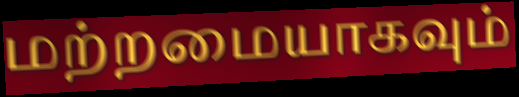
மற்றமையாகவும்